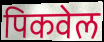
पिकवेल